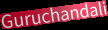
Guruchandali